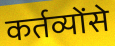
कर्तव्योंसे